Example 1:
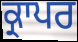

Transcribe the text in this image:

ਕ੍ਰਾਪਰ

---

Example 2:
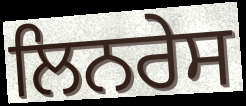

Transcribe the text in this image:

ਲਿਨਰੇਸ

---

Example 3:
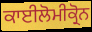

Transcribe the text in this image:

ਕਾਈਲੋਮੀਕ੍ਰੋਨ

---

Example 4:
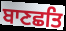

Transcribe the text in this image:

ਬਾਣਛਤਿ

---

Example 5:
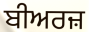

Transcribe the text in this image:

ਬੀਅਰਜ਼